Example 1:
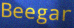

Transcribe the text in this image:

Beegar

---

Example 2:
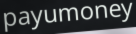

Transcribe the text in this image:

payumoney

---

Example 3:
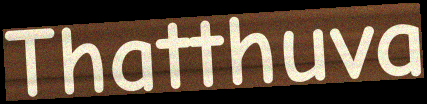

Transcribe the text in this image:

Thatthuva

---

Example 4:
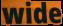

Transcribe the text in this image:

wide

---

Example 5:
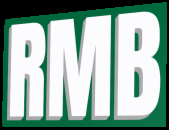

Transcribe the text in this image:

RMB